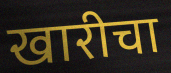
खारीचा